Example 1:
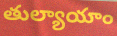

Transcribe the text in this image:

తుల్యాయాం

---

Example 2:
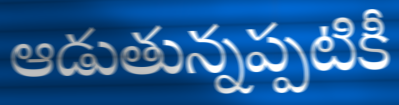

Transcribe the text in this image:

ఆడుతున్నప్పటికీ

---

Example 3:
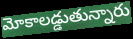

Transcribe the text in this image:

మోకాలడ్డుతున్నారు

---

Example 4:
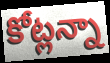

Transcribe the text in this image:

కోట్లన్నా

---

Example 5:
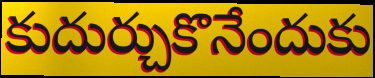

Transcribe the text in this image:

కుదుర్చుకొనేందుకు